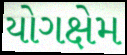
યોગક્ષેમ